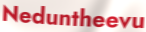
Neduntheevu